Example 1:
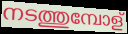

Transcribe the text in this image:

നടത്തുമ്പോള്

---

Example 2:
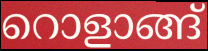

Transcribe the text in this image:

റൊളാങ്ങ്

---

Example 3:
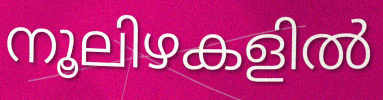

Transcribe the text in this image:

നൂലിഴകളിൽ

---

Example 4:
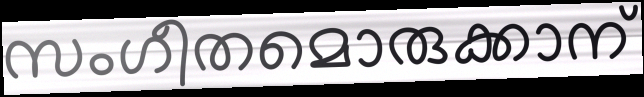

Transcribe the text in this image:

സംഗീതമൊരുക്കാന്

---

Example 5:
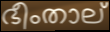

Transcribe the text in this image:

ഭീംതാല്